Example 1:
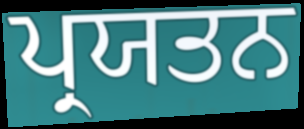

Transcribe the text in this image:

ਪ੍ਰਯਤਨ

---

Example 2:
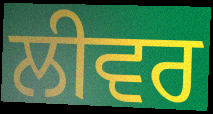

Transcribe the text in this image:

ਲੀਵਰ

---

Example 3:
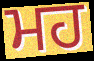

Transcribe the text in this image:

ਮਹ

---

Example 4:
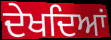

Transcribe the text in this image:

ਦੇਖਦਿਆਂ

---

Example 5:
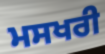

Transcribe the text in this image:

ਮਸਖਰੀ